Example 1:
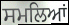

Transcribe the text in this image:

ਸਮਲਿਆਂ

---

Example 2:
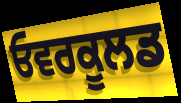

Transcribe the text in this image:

ਓਵਰਕੂਲਡ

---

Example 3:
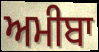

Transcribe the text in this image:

ਅਮੀਬਾ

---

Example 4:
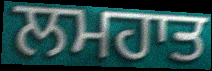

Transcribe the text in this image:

ਲਮਹਾਤ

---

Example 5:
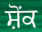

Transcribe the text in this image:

ਸ਼ੋਂਕ